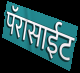
पॅरासाईट